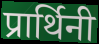
प्रार्थिनी